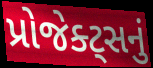
પ્રોજેક્ટ્સનું